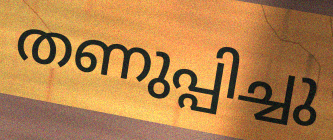
തണുപ്പിച്ചു